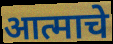
आत्माचे